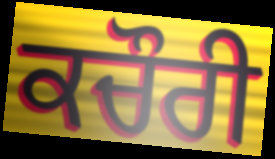
ਕਚੌਰੀ